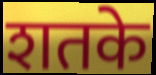
शतके